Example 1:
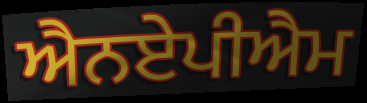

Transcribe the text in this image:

ਐਨਏਪੀਐਮ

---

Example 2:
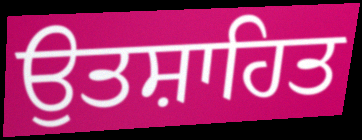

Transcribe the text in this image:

ਉੁਤਸ਼ਾਹਿਤ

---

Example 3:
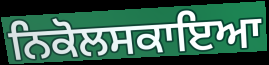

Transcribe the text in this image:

ਨਿਕੋਲਸਕਾਇਆ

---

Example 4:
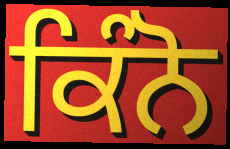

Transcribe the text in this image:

ਕਿੰਨੋ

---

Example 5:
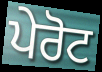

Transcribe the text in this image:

ਪੇਰੋਟ